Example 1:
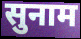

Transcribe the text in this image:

सुनाम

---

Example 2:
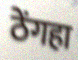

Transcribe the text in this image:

ठेंगहा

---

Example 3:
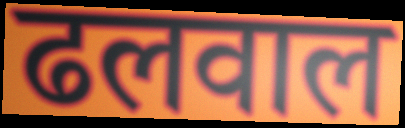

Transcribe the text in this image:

ढलवाल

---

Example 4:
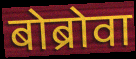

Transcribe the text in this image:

बोब्रोवा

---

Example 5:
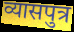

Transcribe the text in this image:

व्यासपुत्र